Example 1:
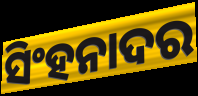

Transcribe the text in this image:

ସିଂହନାଦର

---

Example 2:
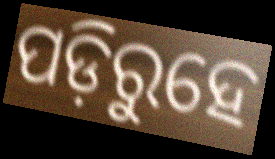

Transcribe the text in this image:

ପଡ଼ିରୁହେ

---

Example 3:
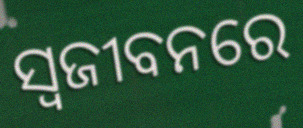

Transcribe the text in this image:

ସ୍ଵଜୀବନରେ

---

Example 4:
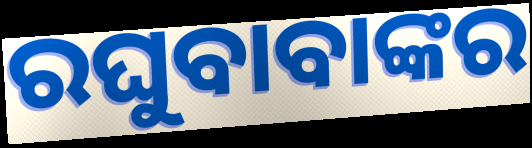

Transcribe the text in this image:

ରଘୁବାବାଙ୍କର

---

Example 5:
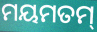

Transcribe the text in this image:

ମୟମତମ୍